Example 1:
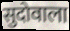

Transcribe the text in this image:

सुदोवाला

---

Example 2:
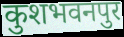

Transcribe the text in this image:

कुशभवनपुर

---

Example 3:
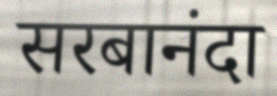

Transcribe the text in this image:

सरबानंदा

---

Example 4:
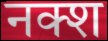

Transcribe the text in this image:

नक्श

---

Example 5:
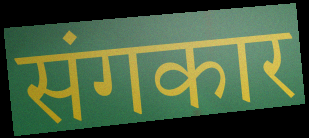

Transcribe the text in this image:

संगकार